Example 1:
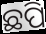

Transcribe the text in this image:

ଛପି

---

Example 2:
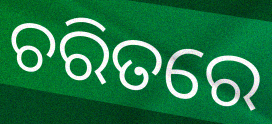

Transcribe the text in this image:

ଚରିତରେ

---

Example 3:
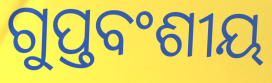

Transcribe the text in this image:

ଗୁପ୍ତବଂଶୀୟ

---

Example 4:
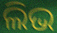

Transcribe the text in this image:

ଲିଭ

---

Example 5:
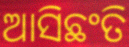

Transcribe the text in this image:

ଆସିଛଂତି